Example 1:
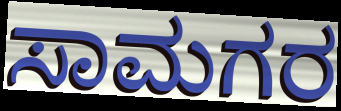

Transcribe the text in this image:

ಸಾಮಗರ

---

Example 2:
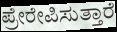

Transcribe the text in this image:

ಪ್ರೇರೇಪಿಸುತ್ತಾರೆ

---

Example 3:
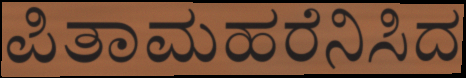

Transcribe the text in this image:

ಪಿತಾಮಹರೆನಿಸಿದ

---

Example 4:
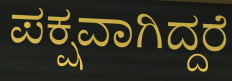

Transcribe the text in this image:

ಪಕ್ಷವಾಗಿದ್ದರೆ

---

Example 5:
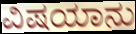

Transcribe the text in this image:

ವಿಷಯಾನು